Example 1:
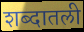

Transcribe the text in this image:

शब्दातली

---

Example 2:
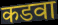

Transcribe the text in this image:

कडवा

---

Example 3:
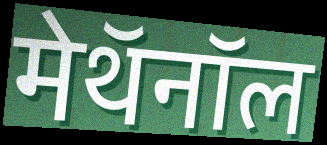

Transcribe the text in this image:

मेथॅनॉल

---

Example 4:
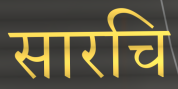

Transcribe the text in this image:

सारचि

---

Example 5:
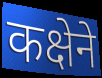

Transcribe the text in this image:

कक्षेने